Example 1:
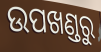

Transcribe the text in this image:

ଉପଖଣ୍ଡରୁ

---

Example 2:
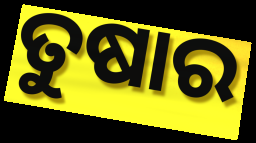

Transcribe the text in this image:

ତୁଷାର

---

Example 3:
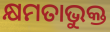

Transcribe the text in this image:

କ୍ଷମତାଭୁକ୍ତ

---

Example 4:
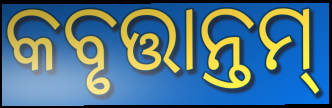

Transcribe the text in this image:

କବୃତ୍ତାନ୍ତମ୍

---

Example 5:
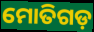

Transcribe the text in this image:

ମୋତିଗଡ଼